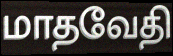
மாதவேதி